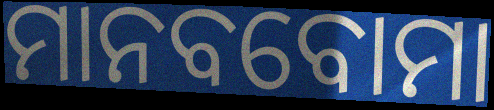
ମାନବବୋମା